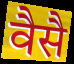
वैसै